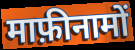
माफ़ीनामों